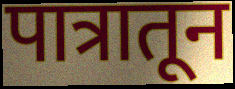
पात्रातून